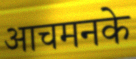
आचमनके